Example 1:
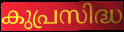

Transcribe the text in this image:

കുപ്രസിദ്ധ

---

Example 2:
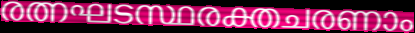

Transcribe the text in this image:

രത്നഘടസ്ഥരക്തചരണാം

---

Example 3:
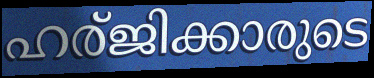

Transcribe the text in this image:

ഹര്ജിക്കാരുടെ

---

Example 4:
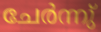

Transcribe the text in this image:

ചേർന്നു്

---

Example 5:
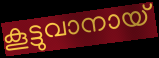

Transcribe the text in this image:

കൂട്ടുവാനായ്